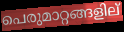
പെരുമാറ്റങ്ങളില്